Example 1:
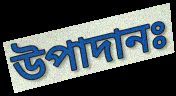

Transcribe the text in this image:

উপাদানঃ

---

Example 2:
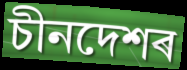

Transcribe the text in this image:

চীনদেশৰ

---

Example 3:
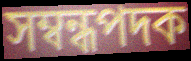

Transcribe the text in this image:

সম্বন্ধপদক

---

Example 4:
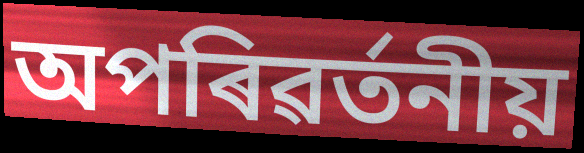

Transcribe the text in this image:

অপৰিৱৰ্তনীয়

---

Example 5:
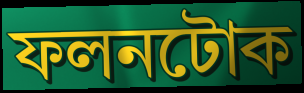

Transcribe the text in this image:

ফলনটোক